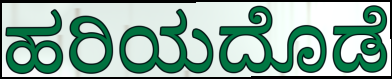
ಹರಿಯದೊಡೆ